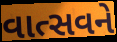
વાત્સવને